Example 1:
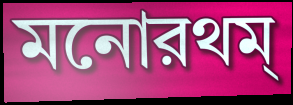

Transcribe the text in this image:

মনোরথম্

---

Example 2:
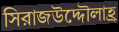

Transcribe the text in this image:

সিরাজউদ্দৌলাহ্র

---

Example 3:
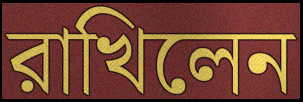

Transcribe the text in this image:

রাখিলেন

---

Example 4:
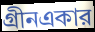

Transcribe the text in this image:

গ্রীনএকার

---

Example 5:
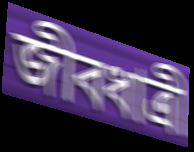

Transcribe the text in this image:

জীবধাত্রী